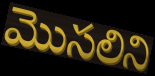
మొసలిని